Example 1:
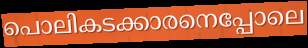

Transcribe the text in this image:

പൊലികടക്കാരനെപ്പോലെ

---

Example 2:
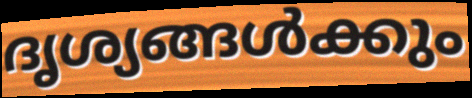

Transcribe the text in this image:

ദൃശ്യങ്ങൾക്കും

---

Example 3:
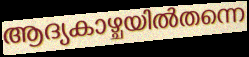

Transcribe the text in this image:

ആദ്യകാഴ്ചയിൽതന്നെ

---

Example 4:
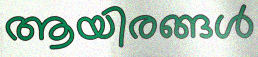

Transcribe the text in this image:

ആയിരങ്ങൾ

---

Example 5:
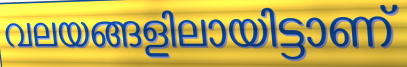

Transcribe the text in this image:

വലയങ്ങളിലായിട്ടാണ്